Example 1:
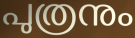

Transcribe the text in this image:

പുത്രനും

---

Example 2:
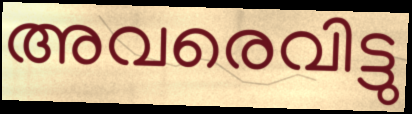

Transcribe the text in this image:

അവരെവിട്ടു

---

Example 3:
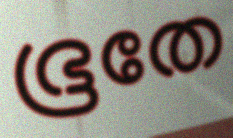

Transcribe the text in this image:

ഭൂതേ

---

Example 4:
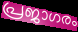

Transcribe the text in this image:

പ്രജാഗരം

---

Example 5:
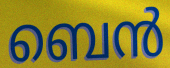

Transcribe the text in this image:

ബെൻ